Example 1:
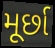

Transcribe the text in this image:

મૂર્છા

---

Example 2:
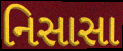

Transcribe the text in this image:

નિસાસા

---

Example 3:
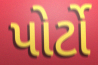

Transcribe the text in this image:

પોર્ટો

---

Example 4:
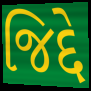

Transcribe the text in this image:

જિદ્દે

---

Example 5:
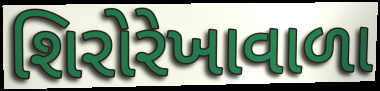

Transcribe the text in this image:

શિરોરેખાવાળા